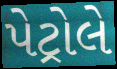
પેટ્રોલે